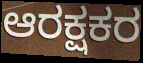
ಆರಕ್ಷಕರ